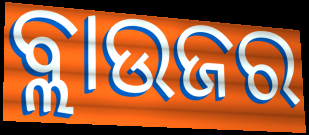
ବ୍ଲାଉଜର